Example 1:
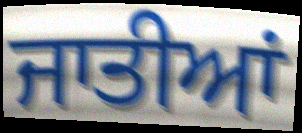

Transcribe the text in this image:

ਜਾਤੀਆਂ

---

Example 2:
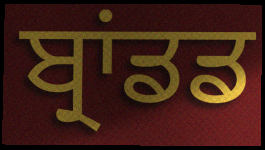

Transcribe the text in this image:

ਬ੍ਰਾਂਡਡ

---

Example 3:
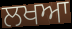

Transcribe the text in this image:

ਲਖਆ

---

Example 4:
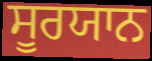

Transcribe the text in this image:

ਸੂਰਯਾਨ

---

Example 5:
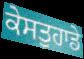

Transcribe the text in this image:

ਕੇਸਤੁਹਾਡੇ